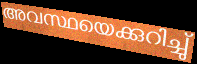
അവസ്ഥയെക്കുറിച്ചു്